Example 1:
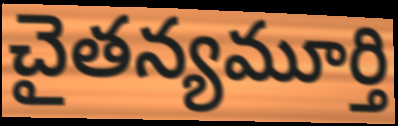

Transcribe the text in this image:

చైతన్యమూర్తి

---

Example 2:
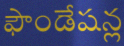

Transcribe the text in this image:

ఫౌండేషన్ల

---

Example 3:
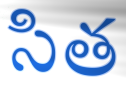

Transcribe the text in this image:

సిత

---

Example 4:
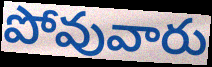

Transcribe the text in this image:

పోవువారు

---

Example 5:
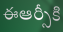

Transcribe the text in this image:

ఈఆర్సీకి